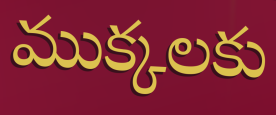
ముక్కలకు